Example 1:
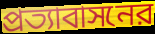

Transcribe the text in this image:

প্রত্যাবাসনের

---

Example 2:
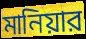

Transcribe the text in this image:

মানিয়ার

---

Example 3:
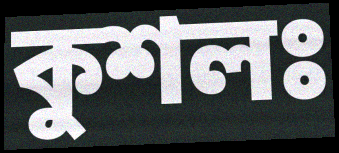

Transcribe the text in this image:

কুশলঃ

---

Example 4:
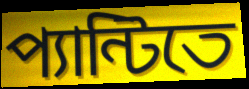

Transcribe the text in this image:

প্যান্টিতে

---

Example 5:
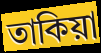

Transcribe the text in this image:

তাকিয়া